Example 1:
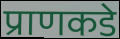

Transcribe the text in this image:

प्राणकडे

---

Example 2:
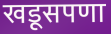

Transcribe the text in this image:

खडूसपणा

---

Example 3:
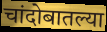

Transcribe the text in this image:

चांदोबातल्या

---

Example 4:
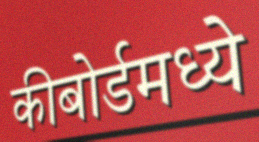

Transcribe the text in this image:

कीबोर्डमध्ये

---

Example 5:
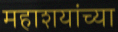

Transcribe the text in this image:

महाशयांच्या